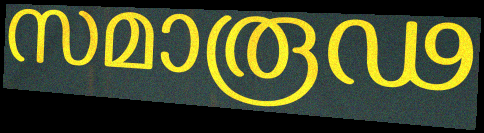
സമാരൂഢ